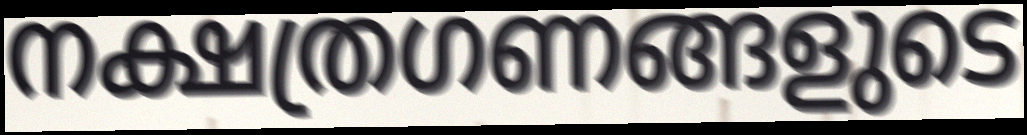
നക്ഷത്രഗണങ്ങളുടെ